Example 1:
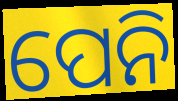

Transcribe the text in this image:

ପେନି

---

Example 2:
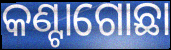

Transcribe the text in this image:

କଣ୍ଟାଗୋଛା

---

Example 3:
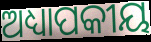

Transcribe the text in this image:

ଅଧ୍ୟାପକୀୟ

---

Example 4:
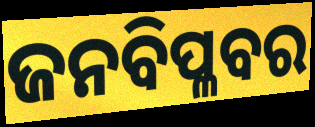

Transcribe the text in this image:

ଜନବିପ୍ଳବର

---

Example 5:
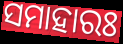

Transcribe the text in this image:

ସମାହାରଃ